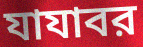
যাযাবর